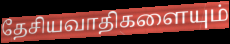
தேசியவாதிகளையும்